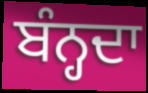
ਬੰਨ੍ਹਦਾ